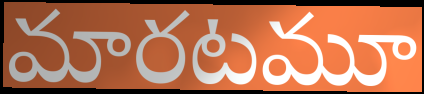
మారటమూ